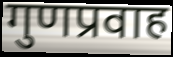
गुणप्रवाह